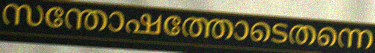
സന്തോഷത്തോടെതന്നെ